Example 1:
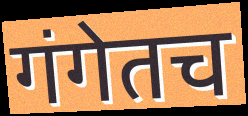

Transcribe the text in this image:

गंगेतच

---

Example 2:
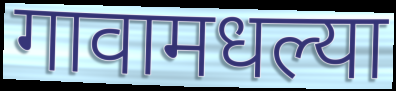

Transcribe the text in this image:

गावामधल्या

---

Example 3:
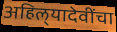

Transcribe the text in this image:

अहिल्यादेवींचा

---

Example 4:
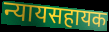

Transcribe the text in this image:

न्यायसहायक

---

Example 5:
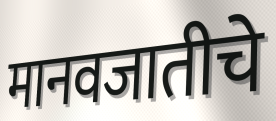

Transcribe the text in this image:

मानवजातीचे